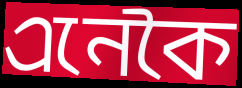
এনেকৈ